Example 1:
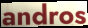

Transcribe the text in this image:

andros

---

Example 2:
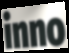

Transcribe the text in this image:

inno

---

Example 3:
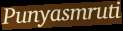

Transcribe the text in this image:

Punyasmruti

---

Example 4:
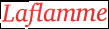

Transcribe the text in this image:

Laflamme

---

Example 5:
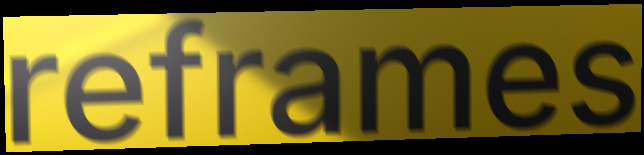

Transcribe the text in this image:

reframes